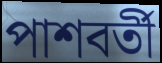
পাশবর্তী